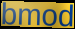
bmod